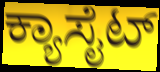
ಕ್ಯಾಸೈಟ್